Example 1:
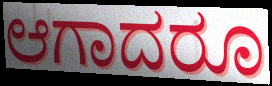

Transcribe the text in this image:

ಆಗಾದರೂ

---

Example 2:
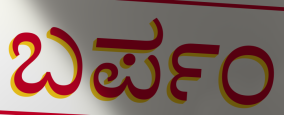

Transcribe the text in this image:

ಬರ್ಪಂ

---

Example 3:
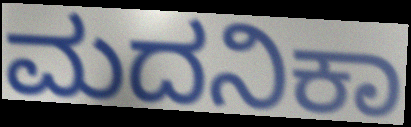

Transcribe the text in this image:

ಮದನಿಕಾ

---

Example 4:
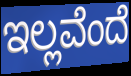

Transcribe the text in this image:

ಇಲ್ಲವೆಂದೆ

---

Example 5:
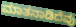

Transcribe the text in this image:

ಮಾತನಾಡಿದೆವು